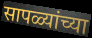
सापळ्यांच्या